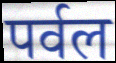
पर्वल